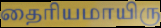
தைரியமாயிரு